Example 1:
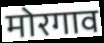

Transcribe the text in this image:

मोरगाव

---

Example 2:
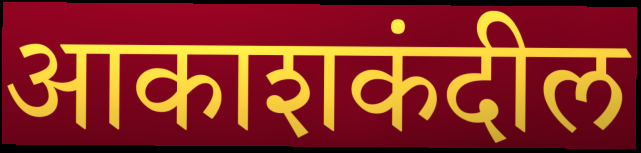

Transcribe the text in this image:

आकाशकंदील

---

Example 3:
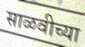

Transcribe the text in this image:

साळवीच्या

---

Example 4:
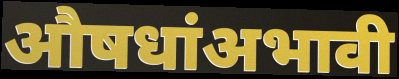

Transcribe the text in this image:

औषधांअभावी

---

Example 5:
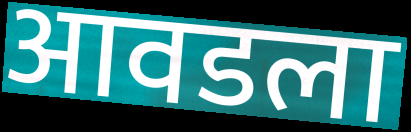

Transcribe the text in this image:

आवडला